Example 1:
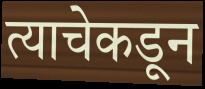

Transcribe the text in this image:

त्याचेकडून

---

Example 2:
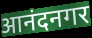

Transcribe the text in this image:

आनंदनगर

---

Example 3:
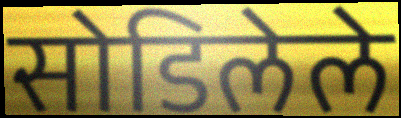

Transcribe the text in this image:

सोडिलेले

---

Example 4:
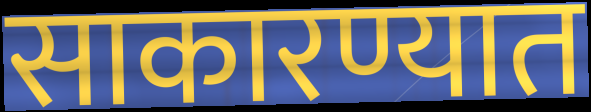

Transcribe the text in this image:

साकारण्यात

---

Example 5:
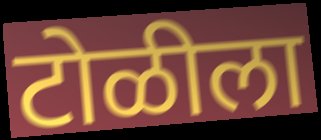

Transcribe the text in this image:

टोळीला